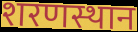
शरणस्थान